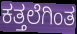
ಕತ್ತಲೆಗಿಂತ